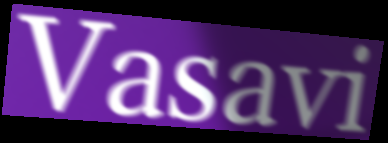
Vasavi